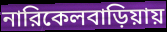
নারিকেলবাড়িয়ায়